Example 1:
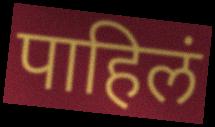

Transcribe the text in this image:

पाहिलं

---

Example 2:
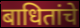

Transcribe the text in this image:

बाधितांचे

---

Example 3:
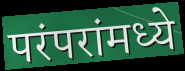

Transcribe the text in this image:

परंपरांमध्ये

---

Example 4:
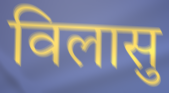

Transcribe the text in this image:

विलासु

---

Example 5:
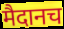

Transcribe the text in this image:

मैदानच